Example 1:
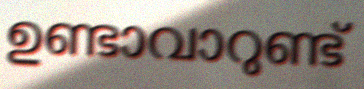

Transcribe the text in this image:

ഉണ്ടാവാറുണ്ട്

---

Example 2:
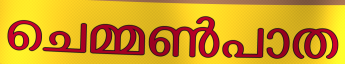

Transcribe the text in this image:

ചെമ്മൺപാത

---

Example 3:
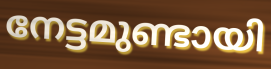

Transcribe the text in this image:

നേട്ടമുണ്ടായി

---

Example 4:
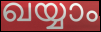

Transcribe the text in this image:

ഖയ്യാം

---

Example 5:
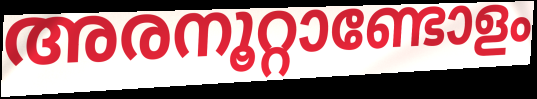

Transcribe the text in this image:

അരനൂറ്റാണ്ടോളം